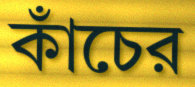
কাঁচের